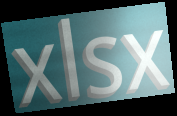
xlsx